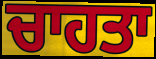
ਚਾਹਤਾ